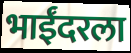
भाईंदरला